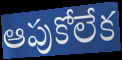
ఆపుకోలేక